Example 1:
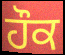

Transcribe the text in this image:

ਹੌਕ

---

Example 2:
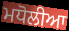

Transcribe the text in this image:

ਮਧੋਲੀਆ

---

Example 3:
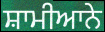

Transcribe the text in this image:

ਸ਼ਾਮੀਆਨੇ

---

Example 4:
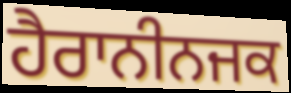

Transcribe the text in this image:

ਹੈਰਾਨੀਨਜਕ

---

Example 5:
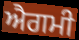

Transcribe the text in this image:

ਐਗਮੀ